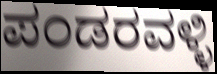
ಪಂಡರವಳ್ಳಿ